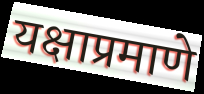
यक्षाप्रमाणे